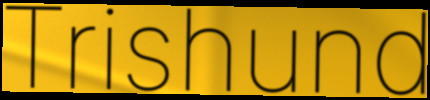
Trishund